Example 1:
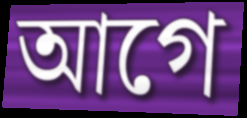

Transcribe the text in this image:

আগে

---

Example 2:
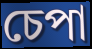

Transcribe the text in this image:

চেপা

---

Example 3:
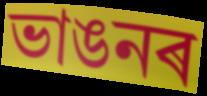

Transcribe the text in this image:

ভাঙনৰ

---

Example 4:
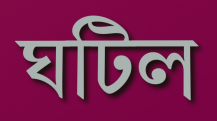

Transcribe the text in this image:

ঘটিল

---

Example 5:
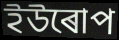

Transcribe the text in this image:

ইউৰোপ